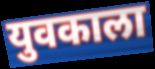
युवकाला